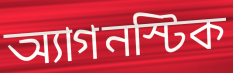
অ্যাগনস্টিক